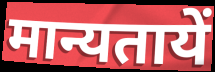
मान्यतायें